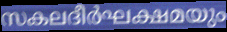
സകലദീർഘക്ഷമയും